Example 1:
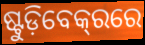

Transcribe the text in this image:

ଷ୍ଟୁଡ଼ିବେକ୍‌ରରେ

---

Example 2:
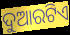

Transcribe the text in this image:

ଦୁଆରଟିଏ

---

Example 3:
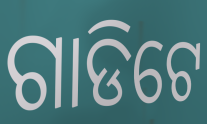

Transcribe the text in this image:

ଗାଡିଟେ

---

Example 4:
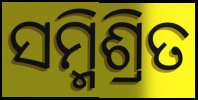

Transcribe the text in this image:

ସମ୍ମିଶ୍ରିତ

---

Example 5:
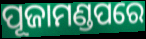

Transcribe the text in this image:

ପୂଜାମଣ୍ଡପରେ